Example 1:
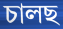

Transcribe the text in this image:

চালছ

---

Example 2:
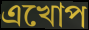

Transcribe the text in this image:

এখোপ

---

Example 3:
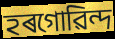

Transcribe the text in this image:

হৰগোৱিন্দ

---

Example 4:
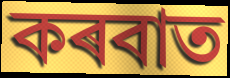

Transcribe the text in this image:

কৰবাত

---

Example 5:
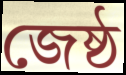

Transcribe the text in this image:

জেষ্ঠ